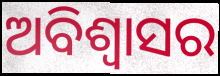
ଅବିଶ୍ବାସର